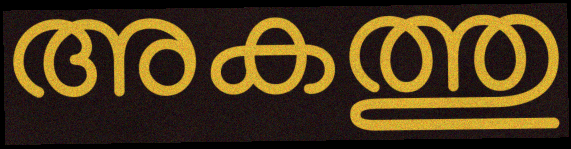
അകത്തു